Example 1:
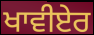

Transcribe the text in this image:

ਖਾਵੀਏਰ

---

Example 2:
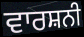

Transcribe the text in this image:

ਵਾਰਸ਼ਨੀ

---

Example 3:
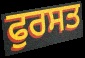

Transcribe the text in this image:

ਫੁਰਸਤ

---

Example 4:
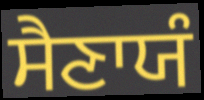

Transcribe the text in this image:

ਸੈਣਾਯੰ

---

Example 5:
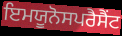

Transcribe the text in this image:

ਇਮਯੂਨੋਸਪਰੈਸੈਂਟ